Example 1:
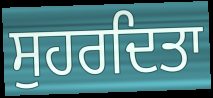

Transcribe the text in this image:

ਸੁਹਰਦਿਤਾ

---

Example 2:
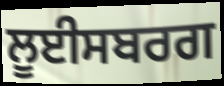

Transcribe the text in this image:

ਲੂਈਸਬਰਗ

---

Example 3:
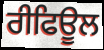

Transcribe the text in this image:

ਰੀਫਿਊਲ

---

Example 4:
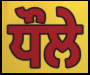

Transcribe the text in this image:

ਧੌਲੇ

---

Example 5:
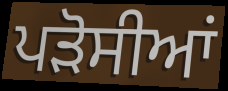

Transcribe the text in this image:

ਪੜੋਸੀਆਂ